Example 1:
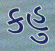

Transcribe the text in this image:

કહુ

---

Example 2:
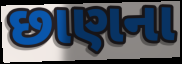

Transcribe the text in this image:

છાણના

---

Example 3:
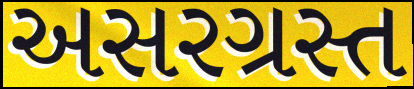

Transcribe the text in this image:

અસરગ્રસ્ત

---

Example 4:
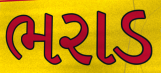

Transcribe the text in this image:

ભરાડ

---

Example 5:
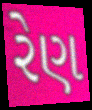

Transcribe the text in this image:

રેણ